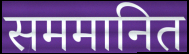
सममानित